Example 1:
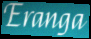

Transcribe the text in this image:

Eranga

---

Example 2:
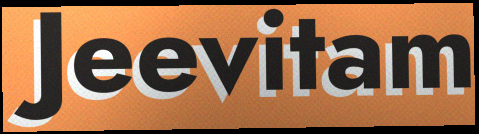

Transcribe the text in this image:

Jeevitam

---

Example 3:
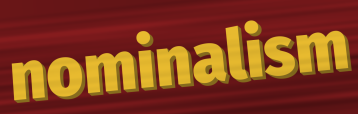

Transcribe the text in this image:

nominalism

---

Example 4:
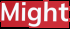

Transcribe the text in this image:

Might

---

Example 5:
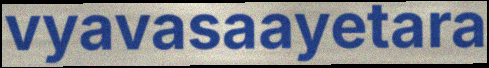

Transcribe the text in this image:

vyavasaayetara